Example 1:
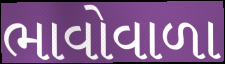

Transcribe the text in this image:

ભાવોવાળા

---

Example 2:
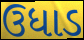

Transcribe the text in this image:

ઉધાડ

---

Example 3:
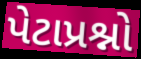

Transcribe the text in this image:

પેટાપ્રશ્નો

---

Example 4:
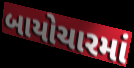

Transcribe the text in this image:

બાયોચારમાં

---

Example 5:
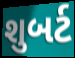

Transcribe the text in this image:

શુબર્ટ